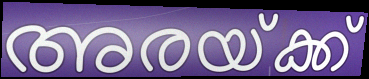
അരയ്‌ക്ക്